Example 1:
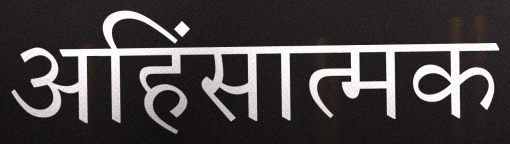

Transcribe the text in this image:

अहिंसात्मक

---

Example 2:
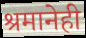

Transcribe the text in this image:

श्रमानेही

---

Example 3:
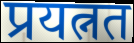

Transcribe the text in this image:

प्रयत्नत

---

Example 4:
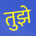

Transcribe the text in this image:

तुझे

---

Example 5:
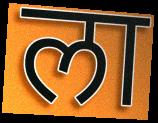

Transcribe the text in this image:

ला